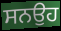
ਸਨਉਹ